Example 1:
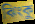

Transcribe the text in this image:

ঝিংকু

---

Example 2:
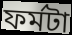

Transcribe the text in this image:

ফর্মটা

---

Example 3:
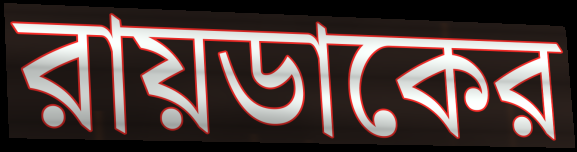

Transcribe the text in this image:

রায়ডাকের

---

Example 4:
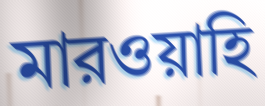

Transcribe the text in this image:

মারওয়াহি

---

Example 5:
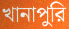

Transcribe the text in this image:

খানাপুরি